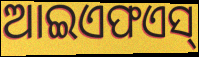
ଆଇଏଫଏସ୍